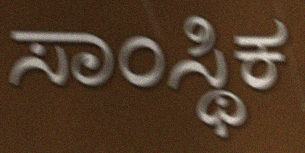
ಸಾಂಸ್ಥಿಕ